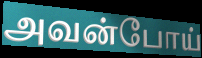
அவன்போய்